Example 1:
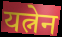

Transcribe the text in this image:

यत्नेन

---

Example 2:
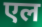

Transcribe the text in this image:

एल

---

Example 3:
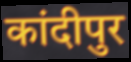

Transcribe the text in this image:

कांदीपुर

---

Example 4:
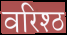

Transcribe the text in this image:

वरिश्ठ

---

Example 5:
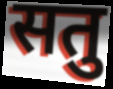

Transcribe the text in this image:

सतु